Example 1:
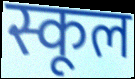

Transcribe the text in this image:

स्‍कूल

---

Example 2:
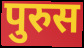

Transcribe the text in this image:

पुरुस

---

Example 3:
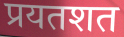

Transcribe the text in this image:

प्रयतशत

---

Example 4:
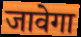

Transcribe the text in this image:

जावेगा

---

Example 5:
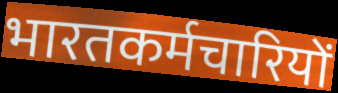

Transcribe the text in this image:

भारतकर्मचारियों